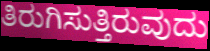
ತಿರುಗಿಸುತ್ತಿರುವುದು